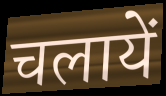
चलायें